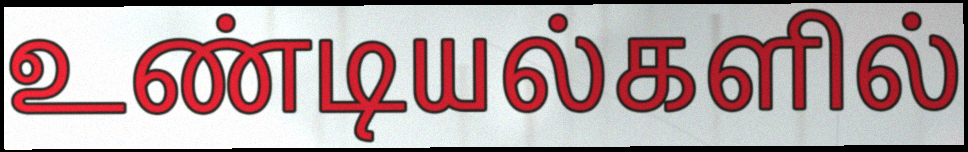
உண்டியல்களில்